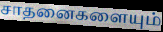
சாதனைகளையும்